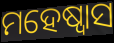
ମହେଷ୍ୱାସ